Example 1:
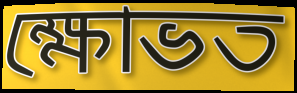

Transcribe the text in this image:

ক্ষোভত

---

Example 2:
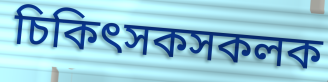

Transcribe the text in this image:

চিকিৎসকসকলক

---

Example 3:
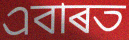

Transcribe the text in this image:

এবাৰত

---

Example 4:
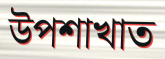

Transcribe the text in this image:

উপশাখাত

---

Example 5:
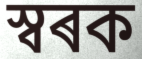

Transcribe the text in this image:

স্বৰক